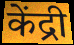
केंद्री